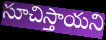
సూచిస్తాయని